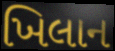
ખિલાન